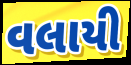
વલાયી